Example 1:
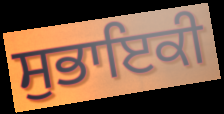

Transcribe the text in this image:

ਸੁਭਾਇਕੀ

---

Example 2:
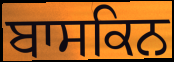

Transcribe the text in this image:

ਬਾਸਕਿਨ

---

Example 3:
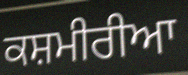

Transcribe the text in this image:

ਕਸ਼ਮੀਰੀਆ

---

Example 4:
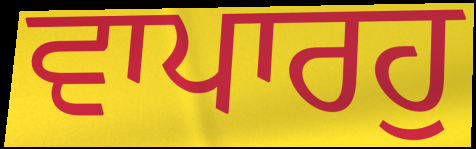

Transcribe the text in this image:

ਵਾਪਾਰਹੁ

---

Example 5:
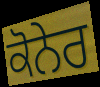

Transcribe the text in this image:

ਕੋਨੇਰ